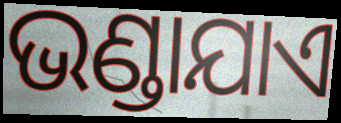
ଭଣ୍ଡାଯାଏ